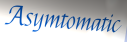
Asymtomatic